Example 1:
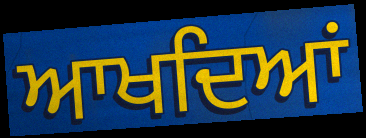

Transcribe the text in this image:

ਆਖਦਿਆਂ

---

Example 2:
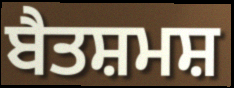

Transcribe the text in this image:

ਬੈਤਸ਼ਮਸ਼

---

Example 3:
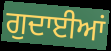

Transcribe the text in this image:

ਗੁਦਾਈਆਂ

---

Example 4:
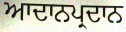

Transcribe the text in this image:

ਆਦਾਨਪ੍ਰਦਾਨ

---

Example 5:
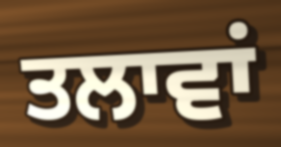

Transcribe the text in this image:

ਤਲਾਵਾਂ